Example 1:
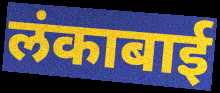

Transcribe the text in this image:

लंकाबाई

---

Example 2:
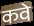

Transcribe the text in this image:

कवे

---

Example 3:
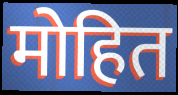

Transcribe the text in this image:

मोहित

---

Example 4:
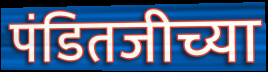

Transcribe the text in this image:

पंडितजीच्या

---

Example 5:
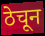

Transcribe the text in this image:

ठेचून